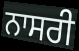
ਨਾਸਰੀ